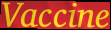
Vaccine